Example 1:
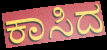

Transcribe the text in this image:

ಕಾಸಿದ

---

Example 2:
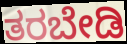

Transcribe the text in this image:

ತರಬೇಡಿ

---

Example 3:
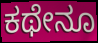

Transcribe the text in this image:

ಕಥೇನೂ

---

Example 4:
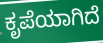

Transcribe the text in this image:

ಕೃಪೆಯಾಗಿದೆ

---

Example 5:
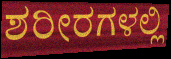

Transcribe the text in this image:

ಶರೀರಗಳಲ್ಲಿ